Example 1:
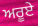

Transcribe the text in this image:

ਅਰੂਏ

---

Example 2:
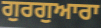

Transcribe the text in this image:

ਗੁਰਗੁਆਰਾ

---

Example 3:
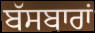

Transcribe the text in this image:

ਬੱਸਬਾਰਾਂ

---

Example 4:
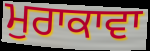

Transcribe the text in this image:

ਮੁਰਾਕਾਵਾ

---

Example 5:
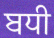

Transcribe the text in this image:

ਬਧੀ